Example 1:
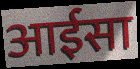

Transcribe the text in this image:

आईसा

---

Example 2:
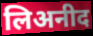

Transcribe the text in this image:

लिअनीद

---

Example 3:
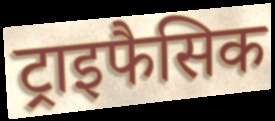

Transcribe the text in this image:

ट्राइफैसिक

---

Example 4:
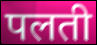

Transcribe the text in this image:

पलती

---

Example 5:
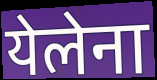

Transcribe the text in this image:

येलेना